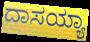
ದಾಸಯ್ಯಾ